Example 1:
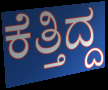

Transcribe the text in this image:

ಕೆತ್ತಿದ್ದ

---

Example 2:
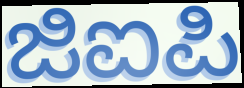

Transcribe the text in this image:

ಜಿಐಪಿ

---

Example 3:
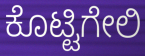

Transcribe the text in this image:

ಕೊಟ್ಟಿಗೇಲಿ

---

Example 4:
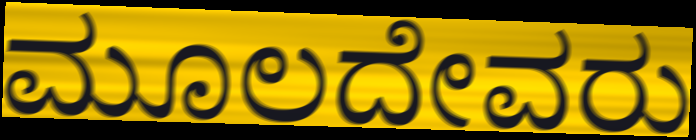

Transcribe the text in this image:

ಮೂಲದೇವರು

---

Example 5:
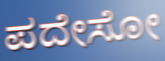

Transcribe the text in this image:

ಪದೇಸೋ